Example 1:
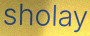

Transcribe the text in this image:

sholay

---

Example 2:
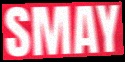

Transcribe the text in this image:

SMAY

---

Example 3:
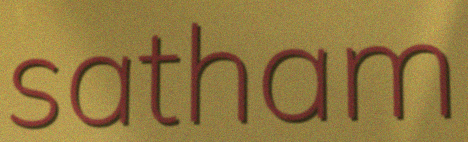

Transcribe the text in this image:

satham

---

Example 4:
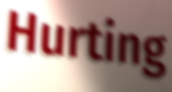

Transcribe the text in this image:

Hurting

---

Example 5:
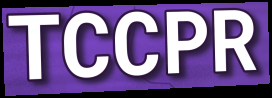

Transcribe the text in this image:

TCCPR